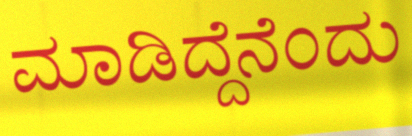
ಮಾಡಿದ್ದೆನೆಂದು